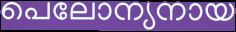
പെലോന്യനായ